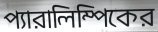
প্যারালিম্পিকের